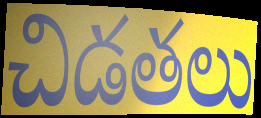
చిడతలు